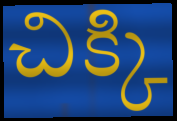
చిక్కి